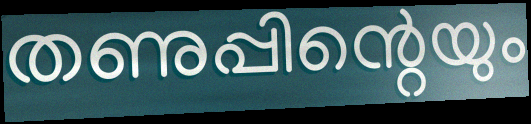
തണുപ്പിന്റെയും